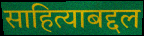
साहित्याबद्दल